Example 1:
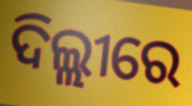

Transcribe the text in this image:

ଦିଲ୍ଲୀରେ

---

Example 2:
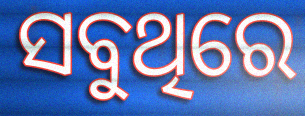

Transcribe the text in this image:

ସବୁଥିରେ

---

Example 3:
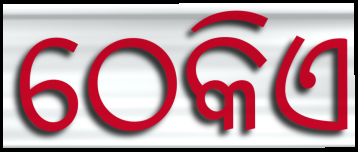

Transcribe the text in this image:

ଠେକିଏ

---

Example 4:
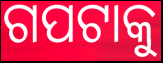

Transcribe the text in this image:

ଗପଟାକୁ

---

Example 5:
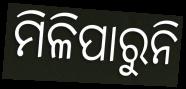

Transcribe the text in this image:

ମିଳିପାରୁନି